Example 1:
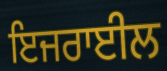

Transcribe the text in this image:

ਇਜਰਾਈਲ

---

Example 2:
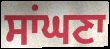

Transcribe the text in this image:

ਸਾਂਘਣਾ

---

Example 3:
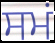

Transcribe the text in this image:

ਸਮਂ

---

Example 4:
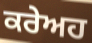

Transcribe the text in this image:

ਕਰੇਅਹ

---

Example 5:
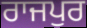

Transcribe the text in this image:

ਰਾਜਪੁਰ